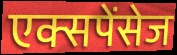
एक्सपेंसेज